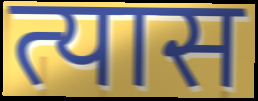
त्‍यास